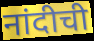
नांदीची